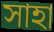
সাহা